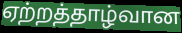
ஏற்றத்தாழ்வான